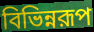
বিভিন্নরূপ